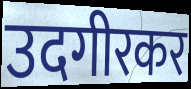
उदगीरकर